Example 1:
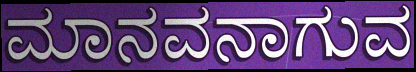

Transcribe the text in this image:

ಮಾನವನಾಗುವ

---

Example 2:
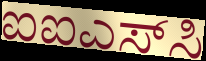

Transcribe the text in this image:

ಐಐಎಸ್‌ಸಿ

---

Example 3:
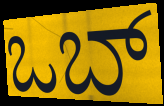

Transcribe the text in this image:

ಒಬ್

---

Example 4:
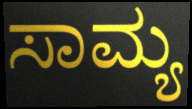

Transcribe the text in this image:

ಸಾಮ್ಯ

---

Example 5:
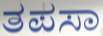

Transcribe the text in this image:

ತಪಸಾ